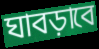
ঘাবড়াবে